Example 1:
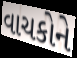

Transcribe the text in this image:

વાચકોને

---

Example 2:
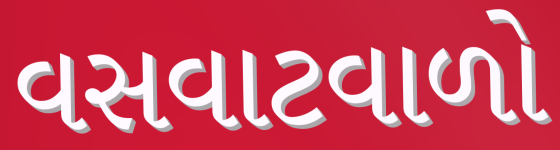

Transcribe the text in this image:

વસવાટવાળો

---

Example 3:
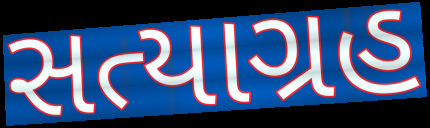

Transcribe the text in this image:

સત્યાગ્રહ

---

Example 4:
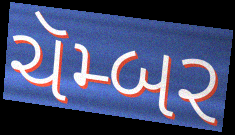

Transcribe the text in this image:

ચૅમ્બર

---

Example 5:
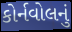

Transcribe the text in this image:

કોર્નવોલનું